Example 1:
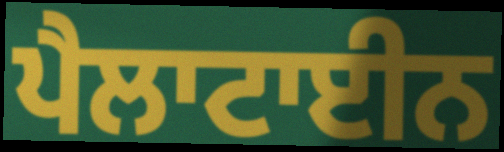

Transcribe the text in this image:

ਪੈਲਾਟਾਈਨ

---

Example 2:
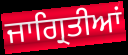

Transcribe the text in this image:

ਜਾਗ੍ਰਿਤੀਆਂ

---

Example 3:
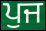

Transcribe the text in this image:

ਪੁਜ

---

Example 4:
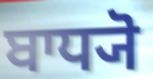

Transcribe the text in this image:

ਬਾਧ੍ਯੋ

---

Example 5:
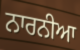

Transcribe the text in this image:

ਨਾਰਨੀਆ